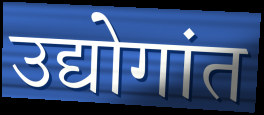
उद्योगांत